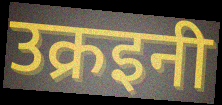
उक्रइनी